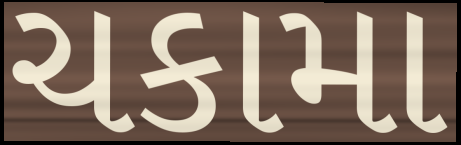
ચકામા